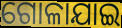
ଗୋଳାଯାଇ